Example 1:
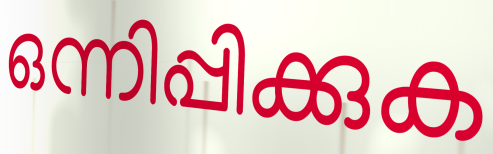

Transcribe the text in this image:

ഒന്നിപ്പിക്കുക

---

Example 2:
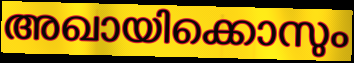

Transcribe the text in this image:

അഖായിക്കൊസും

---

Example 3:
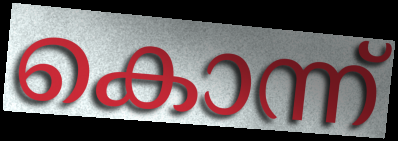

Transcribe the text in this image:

കൊന്ന്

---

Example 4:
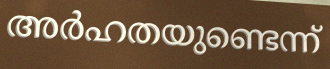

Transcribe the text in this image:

അർഹതയുണ്ടെന്ന്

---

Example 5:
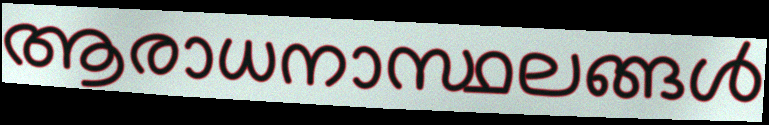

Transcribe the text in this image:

ആരാധനാസ്ഥലങ്ങൾ